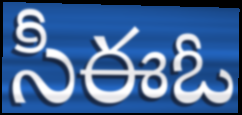
సీఈఓ